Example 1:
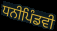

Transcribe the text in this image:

ਧਨੀਪਿੰਡਵੀ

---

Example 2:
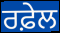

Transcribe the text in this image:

ਰਫ਼ੇਲ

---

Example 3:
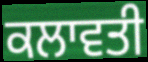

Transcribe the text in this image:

ਕਲਾਵਤੀ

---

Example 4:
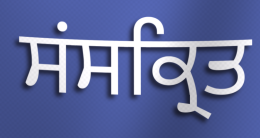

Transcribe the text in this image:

ਸਂਸਕ੍ਰਿਤ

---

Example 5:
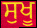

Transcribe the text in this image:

ਸੁਖੂ